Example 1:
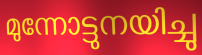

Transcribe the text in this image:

മുന്നോട്ടുനയിച്ചു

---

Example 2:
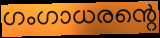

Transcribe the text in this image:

ഗംഗാധരന്റെ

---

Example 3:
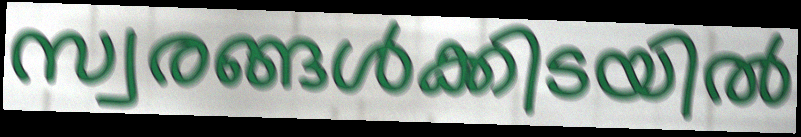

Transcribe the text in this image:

സ്വരങ്ങൾക്കിടയിൽ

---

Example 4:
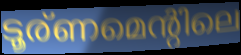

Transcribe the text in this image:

ടൂര്ണമെന്റിലെ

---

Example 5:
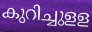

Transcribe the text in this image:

കുറിച്ചുളള